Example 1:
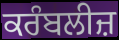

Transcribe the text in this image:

ਕਰੰਬਲੀਜ਼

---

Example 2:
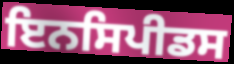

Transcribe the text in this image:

ਇਨਸਿਪੀਡਸ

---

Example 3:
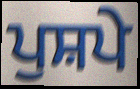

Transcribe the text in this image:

ਪੁਸ਼ਪੇ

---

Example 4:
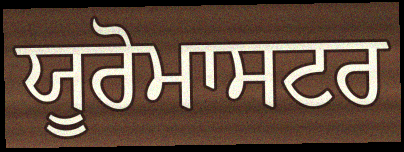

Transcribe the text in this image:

ਯੂਰੋਮਾਸਟਰ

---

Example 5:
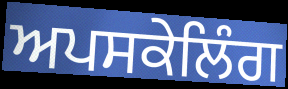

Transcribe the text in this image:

ਅਪਸਕੇਲਿੰਗ